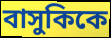
বাসুকিকে